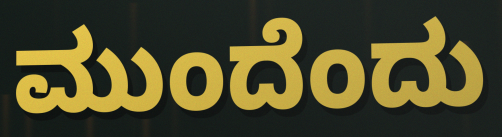
ಮುಂದೆಂದು